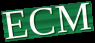
ECM